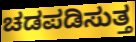
ಚಡಪಡಿಸುತ್ತ